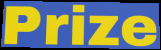
Prize